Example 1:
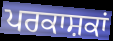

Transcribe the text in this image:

ਪਰਕਾਸ਼ਕਾਂ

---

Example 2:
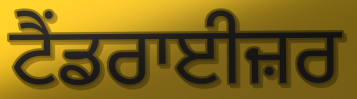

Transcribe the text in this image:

ਟੈਂਡਰਾਈਜ਼ਰ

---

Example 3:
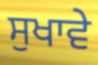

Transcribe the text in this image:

ਸੁਖਾਵੇ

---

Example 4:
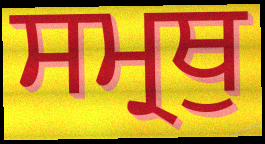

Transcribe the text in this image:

ਸਮ੍ਰਥੁ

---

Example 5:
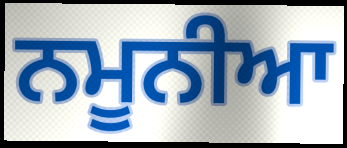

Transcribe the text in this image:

ਨਮੂਨੀਆ